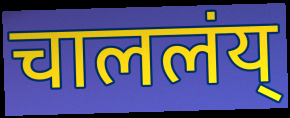
चाललंय्